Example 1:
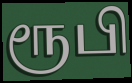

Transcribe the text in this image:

ரூபி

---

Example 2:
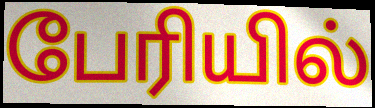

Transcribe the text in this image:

பேரியில்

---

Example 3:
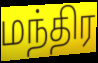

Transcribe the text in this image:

மந்திர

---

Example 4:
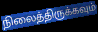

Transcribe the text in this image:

நிலைத்திருக்கவும்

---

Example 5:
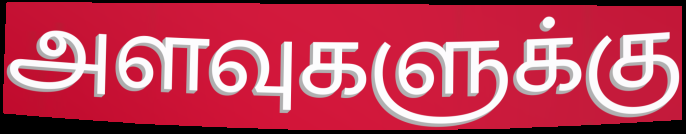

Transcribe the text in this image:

அளவுகளுக்கு